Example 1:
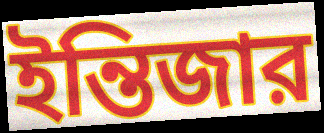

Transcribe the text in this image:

ইন্তিজার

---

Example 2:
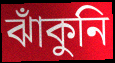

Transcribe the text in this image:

ঝাঁকুনি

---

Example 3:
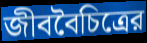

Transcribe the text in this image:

জীববৈচিত্রের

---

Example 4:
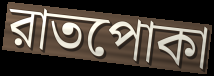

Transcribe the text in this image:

রাতপোকা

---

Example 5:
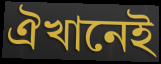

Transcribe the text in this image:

ঐখানেই